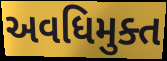
અવધિમુક્ત